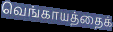
வெங்காயத்தைக்